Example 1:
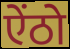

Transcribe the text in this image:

ऐंठो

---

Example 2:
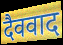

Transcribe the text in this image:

दैववाद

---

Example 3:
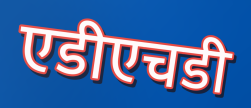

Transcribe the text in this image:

एडीएचडी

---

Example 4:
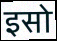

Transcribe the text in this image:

इसो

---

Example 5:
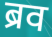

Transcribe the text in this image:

ब्रव